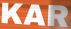
KAR